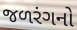
જળરંગનો